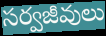
సర్వజీవులు